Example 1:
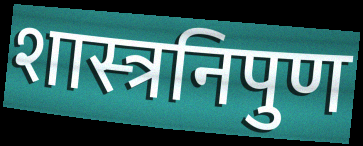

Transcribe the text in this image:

शास्त्रनिपुण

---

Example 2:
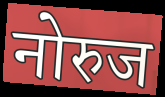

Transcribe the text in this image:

नोरुज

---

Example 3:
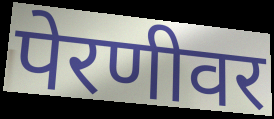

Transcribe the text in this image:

पेरणीवर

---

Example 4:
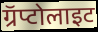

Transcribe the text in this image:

ग्रॅप्टोलाइट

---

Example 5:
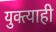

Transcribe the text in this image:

युक्त्याही